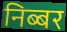
निब्बर